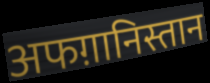
अफग़ानिस्तान